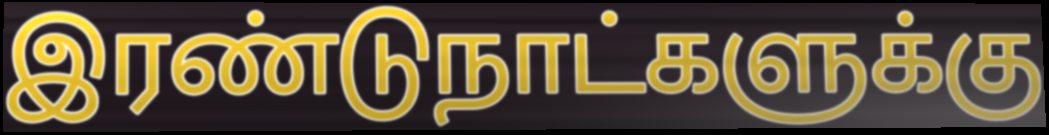
இரண்டுநாட்களுக்கு